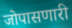
जोपासणारी